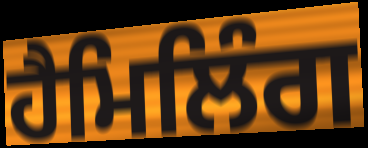
ਹੈਮਿਲਿੰਗ